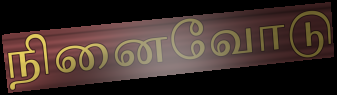
நினைவோடு